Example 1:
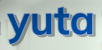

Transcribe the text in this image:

yuta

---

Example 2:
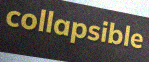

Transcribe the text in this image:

collapsible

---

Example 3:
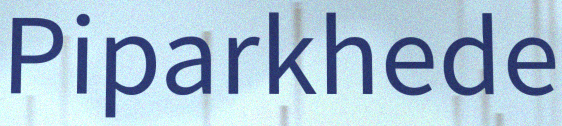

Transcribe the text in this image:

Piparkhede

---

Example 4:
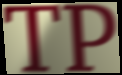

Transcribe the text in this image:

TP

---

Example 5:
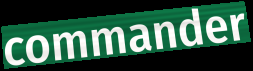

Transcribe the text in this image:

commander